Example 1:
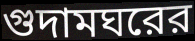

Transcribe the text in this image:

গুদামঘরের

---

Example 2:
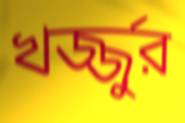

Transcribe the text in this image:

খর্জ্জুর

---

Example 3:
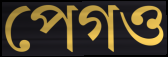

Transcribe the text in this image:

পেগও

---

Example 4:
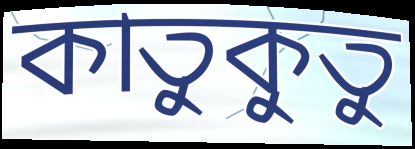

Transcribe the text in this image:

কাতুকুতু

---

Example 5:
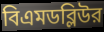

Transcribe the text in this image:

বিএমডব্লিউর